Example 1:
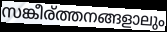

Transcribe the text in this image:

സങ്കീര്ത്തനങ്ങളാലും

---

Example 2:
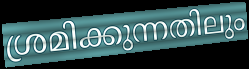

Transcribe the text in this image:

ശ്രമിക്കുന്നതിലും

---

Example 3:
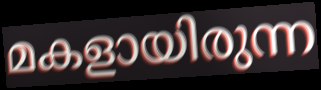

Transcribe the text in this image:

മകളായിരുന്ന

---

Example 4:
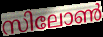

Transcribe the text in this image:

സിലോൺ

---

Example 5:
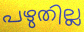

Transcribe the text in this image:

പഴുതില്ല